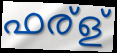
ഫര്ള്